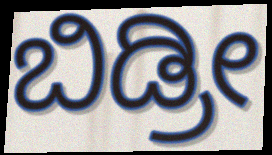
ಬಿಡ್ರೀ